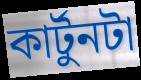
কার্টুনটা